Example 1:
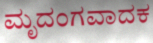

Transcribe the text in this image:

ಮೃದಂಗವಾದಕ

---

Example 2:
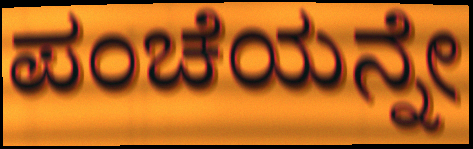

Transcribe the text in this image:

ಪಂಚೆಯನ್ನೇ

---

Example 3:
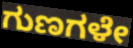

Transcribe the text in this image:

ಗುಣಗಳೇ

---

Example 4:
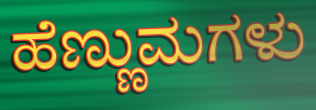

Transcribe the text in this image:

ಹೆಣ್ಣುಮಗಳು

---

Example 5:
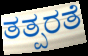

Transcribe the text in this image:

ತತ್ಪರತೆ